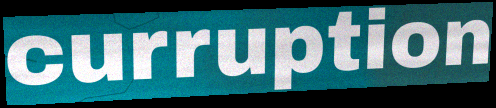
curruption